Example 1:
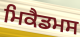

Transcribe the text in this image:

ਮਿਕੈਡਮਸ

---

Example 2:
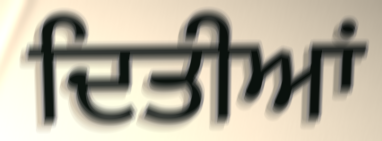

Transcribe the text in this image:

ਦਿਤੀਆਂ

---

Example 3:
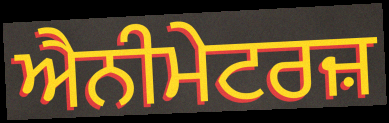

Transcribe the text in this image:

ਐਨੀਮੇਟਰਜ਼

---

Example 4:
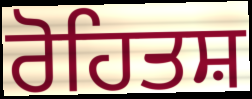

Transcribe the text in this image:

ਰੋਹਿਤਸ਼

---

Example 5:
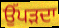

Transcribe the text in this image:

ਉੱਪੜਦਾ